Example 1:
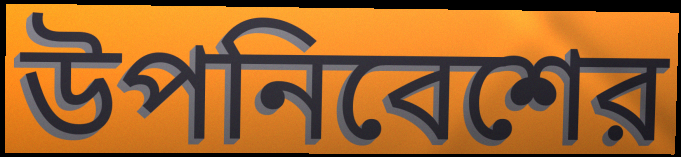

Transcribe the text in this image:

উপনিবেশের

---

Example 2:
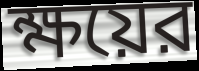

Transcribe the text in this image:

ক্ষয়ের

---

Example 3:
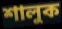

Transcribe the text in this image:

শালুক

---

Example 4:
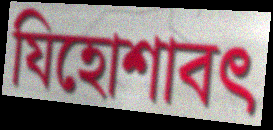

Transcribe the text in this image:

যিহোশাবৎ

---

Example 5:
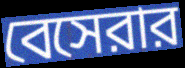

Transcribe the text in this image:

বেসেরার